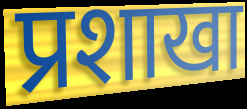
प्रशाखा